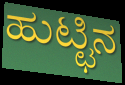
ಹುಟ್ಟಿನ